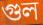
গুল